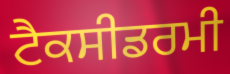
ਟੈਕਸੀਡਰਮੀ